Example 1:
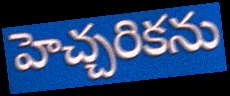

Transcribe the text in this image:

హెచ్చరికను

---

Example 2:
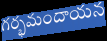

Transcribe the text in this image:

గర్భమందాయన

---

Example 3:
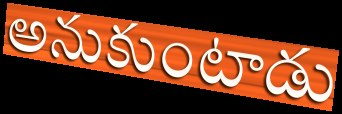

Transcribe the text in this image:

అనుకుంటాడు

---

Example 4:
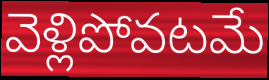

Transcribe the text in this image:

వెళ్లిపోవటమే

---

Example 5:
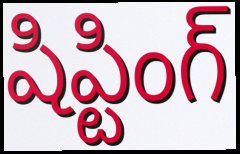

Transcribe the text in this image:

షిప్టింగ్